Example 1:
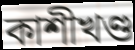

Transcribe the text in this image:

কাশীখণ্ড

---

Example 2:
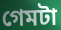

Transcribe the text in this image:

গেমটা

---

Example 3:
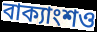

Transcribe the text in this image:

বাক্যাংশও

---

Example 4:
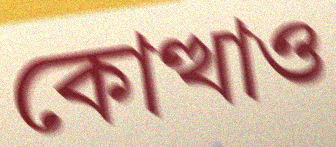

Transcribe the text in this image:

কোত্থাও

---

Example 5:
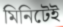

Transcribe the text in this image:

মিনিটেই